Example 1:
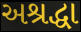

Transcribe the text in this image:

અશ્રદ્ધા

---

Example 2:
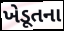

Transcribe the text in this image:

ખેડૂતના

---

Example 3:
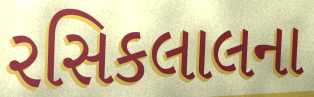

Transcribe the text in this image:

રસિકલાલના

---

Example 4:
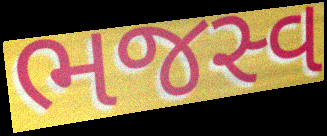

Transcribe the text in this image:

ભજસ્વ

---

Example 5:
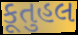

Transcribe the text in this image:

કૂતુહલ